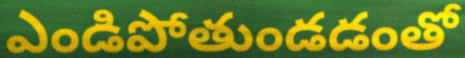
ఎండిపోతుండడంతో